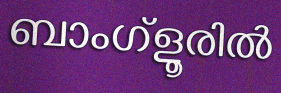
ബാംഗ്ളൂരിൽ